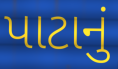
પાટાનું